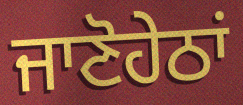
ਜਾਣੋਹੇਠਾਂ